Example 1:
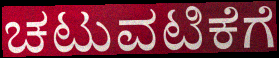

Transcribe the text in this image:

ಚಟುವಟಿಕೆಗೆ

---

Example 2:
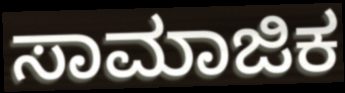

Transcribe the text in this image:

ಸಾಮಾಜಿಕ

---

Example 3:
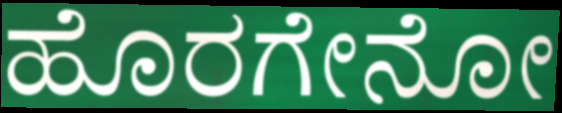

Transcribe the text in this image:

ಹೊರಗೇನೋ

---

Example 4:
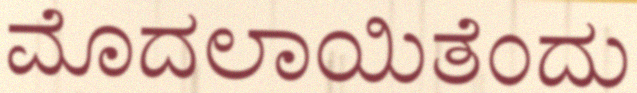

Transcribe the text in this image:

ಮೊದಲಾಯಿತೆಂದು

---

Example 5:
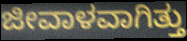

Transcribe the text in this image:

ಜೀವಾಳವಾಗಿತ್ತು